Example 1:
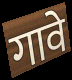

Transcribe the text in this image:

गावे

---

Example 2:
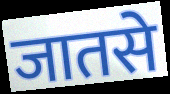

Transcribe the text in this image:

जातसे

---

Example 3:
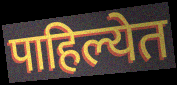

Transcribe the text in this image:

पाहिल्येत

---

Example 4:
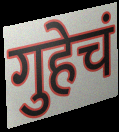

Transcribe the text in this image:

गुहेचं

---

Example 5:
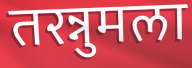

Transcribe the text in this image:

तरन्नुमला